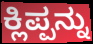
ಕ್ಲಿಪ್ಪನ್ನು